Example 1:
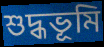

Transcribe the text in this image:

শুদ্ধভূমি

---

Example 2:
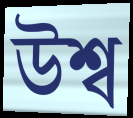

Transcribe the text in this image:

উশ্ব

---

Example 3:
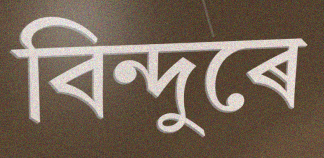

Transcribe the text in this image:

বিন্দুৰে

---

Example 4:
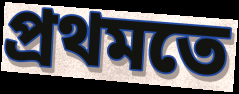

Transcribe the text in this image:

প্ৰথমতে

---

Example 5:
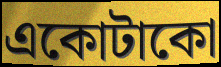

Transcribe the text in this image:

একোটাকো